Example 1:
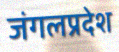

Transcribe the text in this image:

जंगलप्रदेश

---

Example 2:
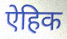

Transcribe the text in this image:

ऐहिक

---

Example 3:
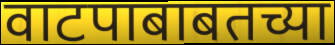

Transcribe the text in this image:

वाटपाबाबतच्या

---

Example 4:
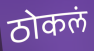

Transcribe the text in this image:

ठोकलं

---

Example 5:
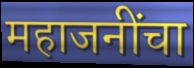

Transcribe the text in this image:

महाजनींचा